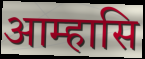
आम्हासि